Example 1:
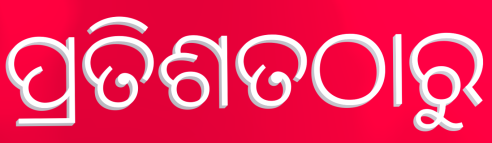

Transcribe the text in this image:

ପ୍ରତିଶତଠାରୁ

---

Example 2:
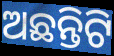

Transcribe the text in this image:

ଅଛନ୍ତିଟି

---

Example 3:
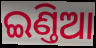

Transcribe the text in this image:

ଇଣ୍ତିଆ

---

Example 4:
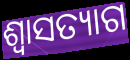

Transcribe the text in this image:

ଶ୍ବାସତ୍ୟାଗ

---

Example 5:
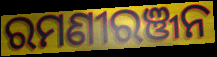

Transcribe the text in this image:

ରମଣୀରଞ୍ଜନ